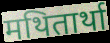
मथितार्था